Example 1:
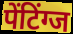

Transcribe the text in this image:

पेंटिंग्ज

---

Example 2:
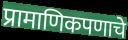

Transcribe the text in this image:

प्रामाणिकपणाचे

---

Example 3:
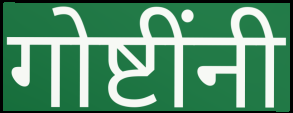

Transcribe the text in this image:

गोष्टींनी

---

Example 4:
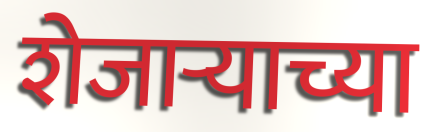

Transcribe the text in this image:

शेजाऱ्याच्या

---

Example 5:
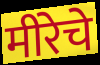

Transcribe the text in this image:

मीरेचे